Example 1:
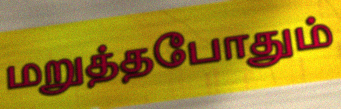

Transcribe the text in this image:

மறுத்தபோதும்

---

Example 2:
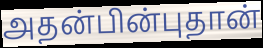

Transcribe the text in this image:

அதன்பின்புதான்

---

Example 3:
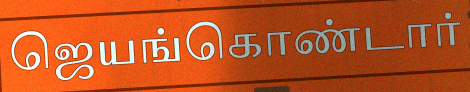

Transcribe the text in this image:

ஜெயங்கொண்டார்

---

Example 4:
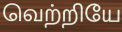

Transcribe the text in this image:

வெற்றியே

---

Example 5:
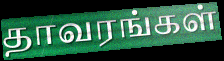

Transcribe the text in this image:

தாவரங்கள்